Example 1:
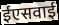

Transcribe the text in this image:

ईएसवाई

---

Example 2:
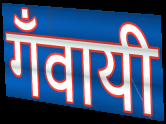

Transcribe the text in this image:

गँवायी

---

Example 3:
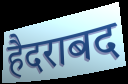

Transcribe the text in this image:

हैदराबद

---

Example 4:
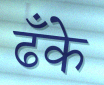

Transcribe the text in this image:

ढँके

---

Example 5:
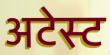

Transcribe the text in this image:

अटेस्ट